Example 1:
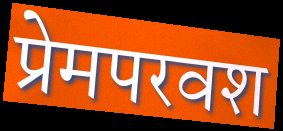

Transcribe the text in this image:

प्रेमपरवश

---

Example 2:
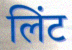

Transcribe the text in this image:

लिंट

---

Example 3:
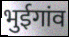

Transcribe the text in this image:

भुईगांव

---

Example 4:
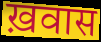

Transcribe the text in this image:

ख़वास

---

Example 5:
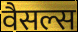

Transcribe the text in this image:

वैसल्स